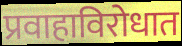
प्रवाहाविरोधात